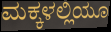
ಮಕ್ಕಳಲ್ಲಿಯೂ